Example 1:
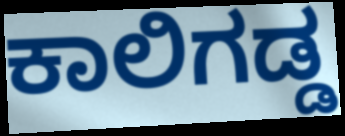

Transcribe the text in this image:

ಕಾಲಿಗಡ್ಡ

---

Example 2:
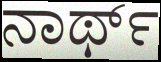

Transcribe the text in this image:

ನಾರ್ಥ್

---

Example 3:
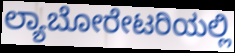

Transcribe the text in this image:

ಲ್ಯಾಬೋರೇಟರಿಯಲ್ಲಿ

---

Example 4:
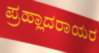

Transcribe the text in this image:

ಪ್ರಹ್ಲಾದರಾಯರ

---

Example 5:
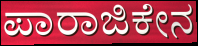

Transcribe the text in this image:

ಪಾರಾಜಿಕೇನ